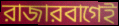
রাজারবাগেই